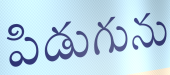
పిడుగును